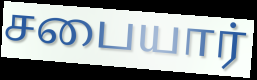
சபையார்